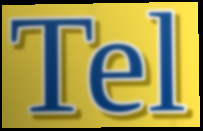
Tel